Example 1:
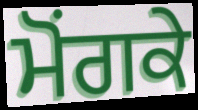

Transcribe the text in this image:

ਮੋਂਗਕੇ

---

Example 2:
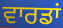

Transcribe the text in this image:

ਵਾਰਡਾਂ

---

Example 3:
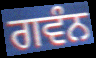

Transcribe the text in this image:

ਗਵੰਨ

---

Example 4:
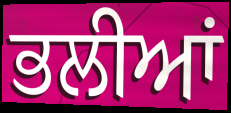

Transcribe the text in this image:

ਭਲੀਆਂ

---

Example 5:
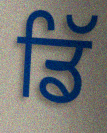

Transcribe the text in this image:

ਡਿੱ